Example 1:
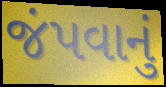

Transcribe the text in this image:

જંપવાનું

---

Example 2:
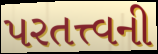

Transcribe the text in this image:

પરતત્ત્વની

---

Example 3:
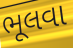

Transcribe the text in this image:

ભૂલવા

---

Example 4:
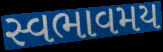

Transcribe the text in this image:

સ્વભાવમય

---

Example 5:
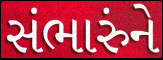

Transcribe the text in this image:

સંભારુંને